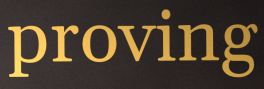
proving